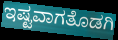
ಇಷ್ಟವಾಗತೊಡಗಿ